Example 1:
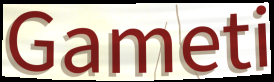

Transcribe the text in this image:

Gameti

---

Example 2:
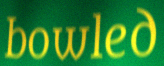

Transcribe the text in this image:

bowled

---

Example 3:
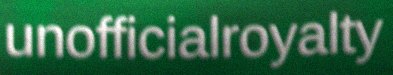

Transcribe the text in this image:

unofficialroyalty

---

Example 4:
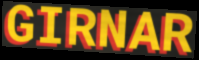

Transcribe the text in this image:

GIRNAR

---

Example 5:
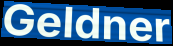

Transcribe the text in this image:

Geldner